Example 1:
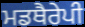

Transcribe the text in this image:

ਮਡਥੈਰੇਪੀ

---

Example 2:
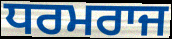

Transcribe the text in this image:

ਧਰਮਰਾਜ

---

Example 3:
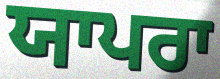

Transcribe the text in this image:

ਯਾਪਰਾ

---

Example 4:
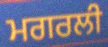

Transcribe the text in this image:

ਮਗਰਲੀ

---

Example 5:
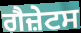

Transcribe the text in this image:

ਗੈਜ਼ੇਟਸ